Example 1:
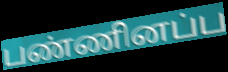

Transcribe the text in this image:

பண்ணினப்ப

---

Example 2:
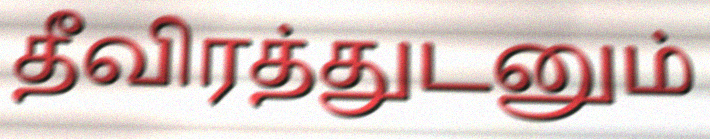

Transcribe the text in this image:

தீவிரத்துடனும்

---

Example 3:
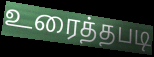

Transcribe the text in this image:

உரைத்தபடி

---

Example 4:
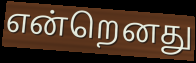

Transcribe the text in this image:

என்றெனது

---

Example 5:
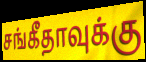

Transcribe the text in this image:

சங்கீதாவுக்கு